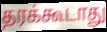
தரக்கூடாது